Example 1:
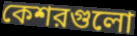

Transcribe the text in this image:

কেশরগুলো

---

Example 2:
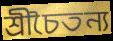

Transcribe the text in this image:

শ্রীচৈতন্য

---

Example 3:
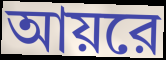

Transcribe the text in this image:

আয়রে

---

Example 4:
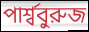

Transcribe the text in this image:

পার্শ্ববুরুজ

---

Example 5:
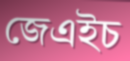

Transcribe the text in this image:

জেএইচ